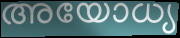
അയോധ്യ